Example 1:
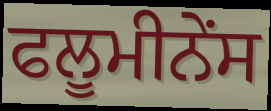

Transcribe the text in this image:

ਫਲੂਮੀਨੇਂਸ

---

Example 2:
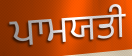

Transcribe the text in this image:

ਪਾਮਯਤੀ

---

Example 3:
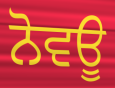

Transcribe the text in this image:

ਨੋਵਊ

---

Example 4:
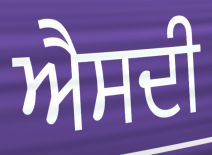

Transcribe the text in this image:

ਐਸਦੀ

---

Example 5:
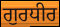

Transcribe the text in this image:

ਗੁਰਧੀਰ